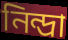
নিন্দ্ৰা